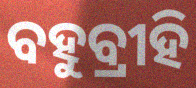
ବହୁବ୍ରୀହି